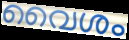
വൈശം